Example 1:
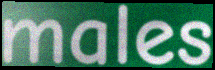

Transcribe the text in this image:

males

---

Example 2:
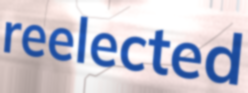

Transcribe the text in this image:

reelected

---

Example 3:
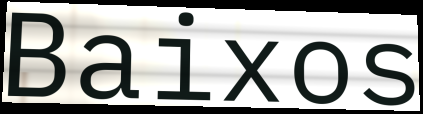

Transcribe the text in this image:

Baixos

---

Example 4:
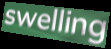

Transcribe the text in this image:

swelling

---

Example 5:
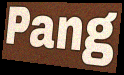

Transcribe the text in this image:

Pang